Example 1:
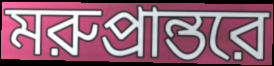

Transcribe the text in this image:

মরুপ্রান্তরে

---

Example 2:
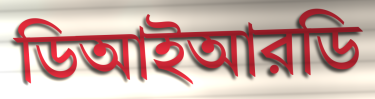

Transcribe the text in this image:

ডিআইআরডি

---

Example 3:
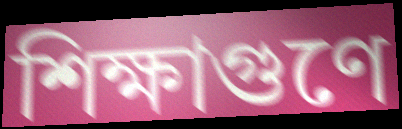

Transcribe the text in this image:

শিক্ষাগুণে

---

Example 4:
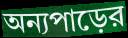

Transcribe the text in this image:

অন্যপাড়ের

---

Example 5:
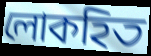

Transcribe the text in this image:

লোকহিত